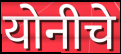
योनीचे